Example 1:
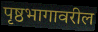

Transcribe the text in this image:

पृष्ठभागावरील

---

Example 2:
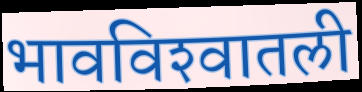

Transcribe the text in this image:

भावविश्वातली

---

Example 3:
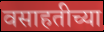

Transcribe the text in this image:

वसाहतीच्या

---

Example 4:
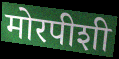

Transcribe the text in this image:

मोरपीशी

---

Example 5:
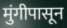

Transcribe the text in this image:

मुंगीपासून